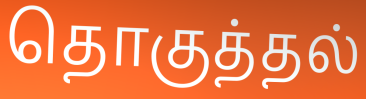
தொகுத்தல்